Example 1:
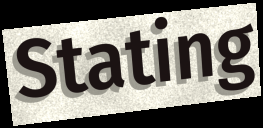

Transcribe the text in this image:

Stating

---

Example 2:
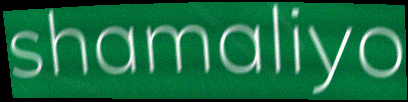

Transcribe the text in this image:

shamaliyo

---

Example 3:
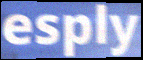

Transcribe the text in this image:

esply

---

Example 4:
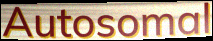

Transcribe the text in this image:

Autosomal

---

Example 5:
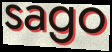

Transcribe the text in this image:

sago